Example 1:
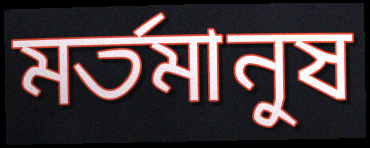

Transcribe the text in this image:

মর্তমানুষ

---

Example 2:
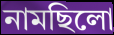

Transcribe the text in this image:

নামছিলো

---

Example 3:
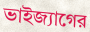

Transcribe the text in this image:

ভাইজ্যাগের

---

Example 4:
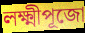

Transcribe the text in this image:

লক্ষ্মীপূজো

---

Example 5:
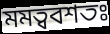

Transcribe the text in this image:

মমত্ববশতঃ